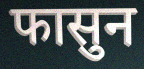
फासुन